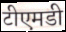
टीएमडी